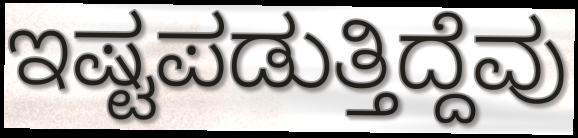
ಇಷ್ಟಪಡುತ್ತಿದ್ದೆವು